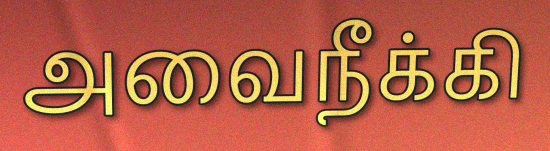
அவைநீக்கி